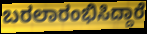
ಬರಲಾರಂಭಿಸಿದ್ದಾರೆ